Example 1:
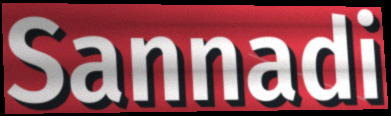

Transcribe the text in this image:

Sannadi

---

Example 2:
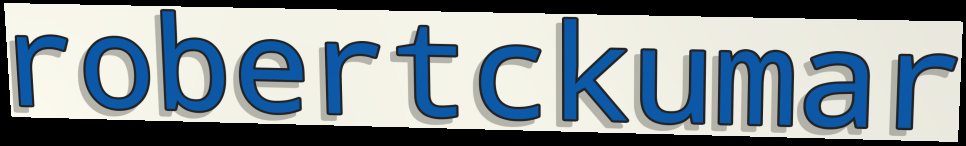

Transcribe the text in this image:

robertckumar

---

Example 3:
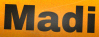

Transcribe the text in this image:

Madi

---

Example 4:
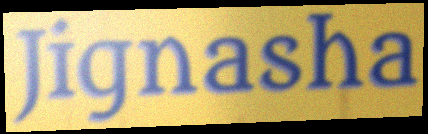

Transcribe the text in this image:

Jignasha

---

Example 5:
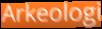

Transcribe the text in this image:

Arkeologi